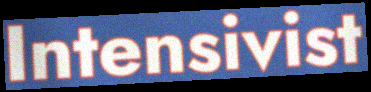
Intensivist